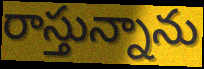
రాస్తున్నాను